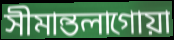
সীমান্তলাগোয়া